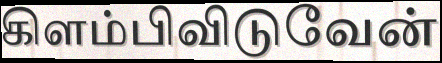
கிளம்பிவிடுவேன்